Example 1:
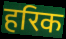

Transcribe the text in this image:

हरिक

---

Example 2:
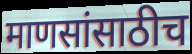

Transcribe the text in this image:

माणसांसाठीच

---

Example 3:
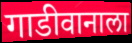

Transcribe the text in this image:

गाडीवानाला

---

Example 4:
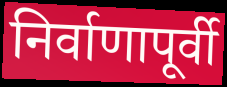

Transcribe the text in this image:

निर्वाणापूर्वी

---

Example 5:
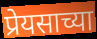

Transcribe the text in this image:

प्रेयसाच्या